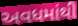
અવધમાંથી